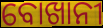
ବୋଖାନୀ